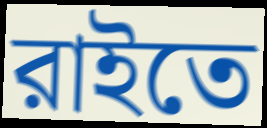
রাইতে